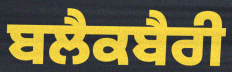
ਬਲੈਕਬੈਰੀ